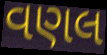
વણલ